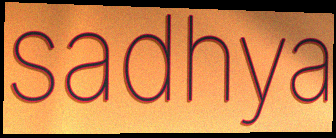
sadhya